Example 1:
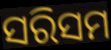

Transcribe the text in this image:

ସରିସମ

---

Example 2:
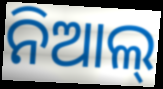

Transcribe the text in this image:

ନିଆଲ୍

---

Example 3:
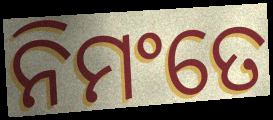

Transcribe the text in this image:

ନିମଂତେ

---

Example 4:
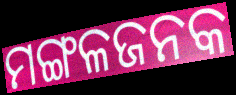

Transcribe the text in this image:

ମଙ୍ଗଳଜନକ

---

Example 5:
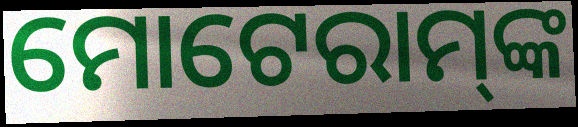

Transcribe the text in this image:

ମୋଟେରାମ୍‌ଙ୍କ